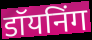
डॉयनिंग